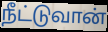
நீட்டுவான்